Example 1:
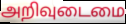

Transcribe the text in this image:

அறிவுடைமை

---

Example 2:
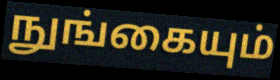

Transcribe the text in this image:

நுங்கையும்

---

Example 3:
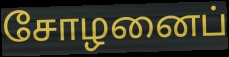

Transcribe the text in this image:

சோழனைப்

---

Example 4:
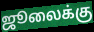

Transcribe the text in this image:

ஜூலைக்கு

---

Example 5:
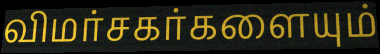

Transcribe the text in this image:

விமர்சகர்களையும்